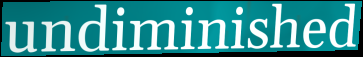
undiminished